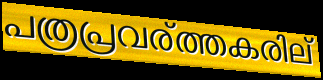
പത്രപ്രവര്ത്തകരില്